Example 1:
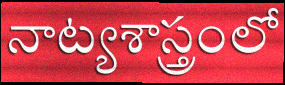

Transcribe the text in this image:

నాట్యశాస్త్రంలో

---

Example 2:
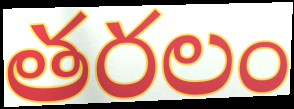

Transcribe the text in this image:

తరలం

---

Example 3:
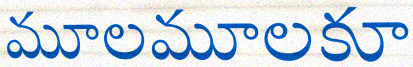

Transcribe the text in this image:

మూలమూలకూ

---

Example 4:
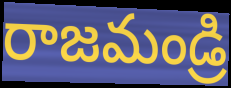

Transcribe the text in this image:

రాజమండ్రి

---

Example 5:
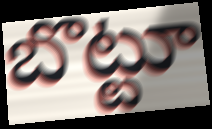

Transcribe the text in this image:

బొట్టూ